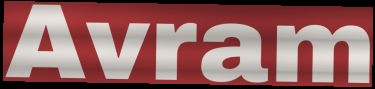
Avram